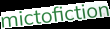
mictofiction